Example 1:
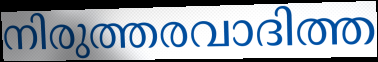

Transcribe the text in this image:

നിരുത്തരവാദിത്ത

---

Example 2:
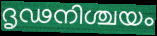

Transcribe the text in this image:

ദൃഢനിശ്ചയം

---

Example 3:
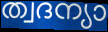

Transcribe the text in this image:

ത്വദന്യാ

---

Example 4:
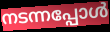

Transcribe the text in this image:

നടന്നപ്പോൾ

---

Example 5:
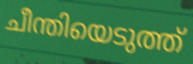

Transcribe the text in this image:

ചീന്തിയെടുത്ത്